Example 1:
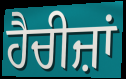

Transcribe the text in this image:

ਹੈਚੀਜ਼ਾਂ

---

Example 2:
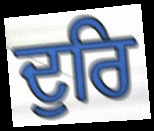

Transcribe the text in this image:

ਦੁਰਿ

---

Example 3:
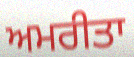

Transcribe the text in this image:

ਅਮਰੀਤਾ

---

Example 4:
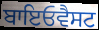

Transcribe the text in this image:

ਬਾਇਓਵੈਸਟ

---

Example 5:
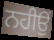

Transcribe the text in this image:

ਨਹੀਉਂ